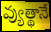
వ్యుత్థానే